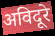
अविदूरे